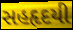
સહહૃદયી